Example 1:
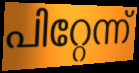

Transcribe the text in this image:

പിറ്റേന്ന്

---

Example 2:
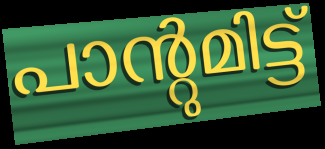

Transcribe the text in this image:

പാന്റുമിട്ട്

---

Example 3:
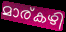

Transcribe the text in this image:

മാര്കഴി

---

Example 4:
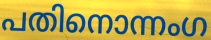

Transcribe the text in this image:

പതിനൊന്നംഗ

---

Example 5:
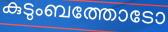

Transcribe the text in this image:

കുടുംബത്തോടോ